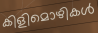
കിളിമൊഴികൾ